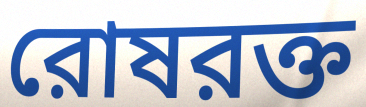
রোষরক্ত